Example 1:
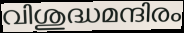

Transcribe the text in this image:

വിശുദ്ധമന്ദിരം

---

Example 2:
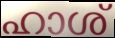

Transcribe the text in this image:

ഹാശ്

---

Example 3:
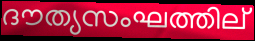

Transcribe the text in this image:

ദൗത്യസംഘത്തില്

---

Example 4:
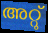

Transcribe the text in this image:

അറ്റു്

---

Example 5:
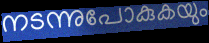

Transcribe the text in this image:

നടന്നുപോകുകയും